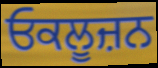
ਓਕਲੂਜ਼ਨ